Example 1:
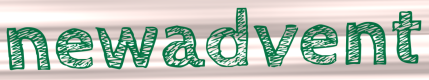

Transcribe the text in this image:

newadvent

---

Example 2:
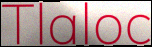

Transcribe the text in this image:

Tlaloc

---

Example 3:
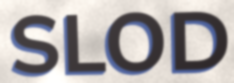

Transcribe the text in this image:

SLOD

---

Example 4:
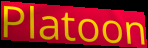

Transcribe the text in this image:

Platoon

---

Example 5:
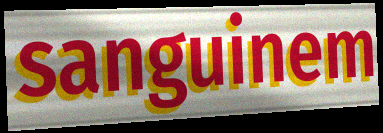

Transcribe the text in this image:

sanguinem